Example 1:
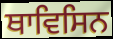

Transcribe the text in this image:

ਥਾਵਿਸਿਨ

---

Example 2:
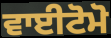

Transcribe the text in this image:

ਵਾਈਟੋਮੋ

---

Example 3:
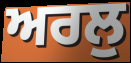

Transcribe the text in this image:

ਅਰਲੁ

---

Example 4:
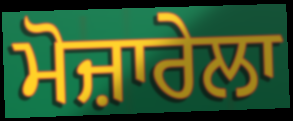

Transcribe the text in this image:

ਮੋਜ਼ਾਰੇਲਾ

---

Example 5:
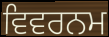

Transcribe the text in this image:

ਵਿਵਰਨਮ